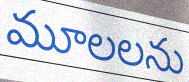
మూలలను